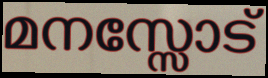
മനസ്സോട്